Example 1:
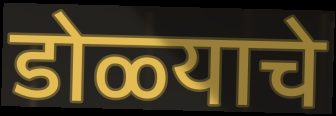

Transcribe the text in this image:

डोळ्याचे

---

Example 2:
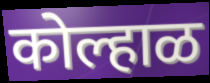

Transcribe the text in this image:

कोल्हाळ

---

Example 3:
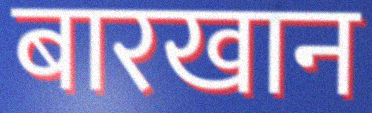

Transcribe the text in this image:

बारखान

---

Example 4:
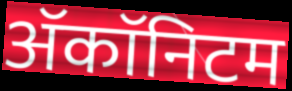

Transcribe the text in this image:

ॲकॉनिटम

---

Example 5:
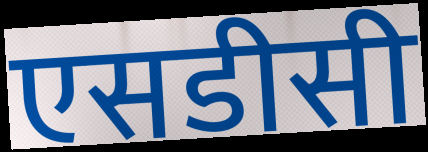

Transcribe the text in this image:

एसडीसी